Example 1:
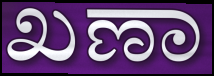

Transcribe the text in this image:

ಖಣಾ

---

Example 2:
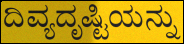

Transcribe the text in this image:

ದಿವ್ಯದೃಷ್ಟಿಯನ್ನು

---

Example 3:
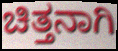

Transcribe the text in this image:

ಚಿತ್ತನಾಗಿ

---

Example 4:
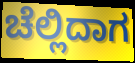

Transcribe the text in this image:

ಚೆಲ್ಲಿದಾಗ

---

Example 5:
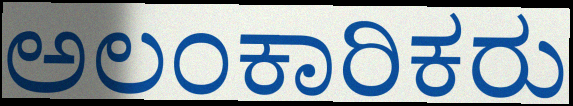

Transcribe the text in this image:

ಅಲಂಕಾರಿಕರು